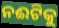
ନଈଟିକୁ